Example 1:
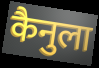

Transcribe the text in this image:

कैनुला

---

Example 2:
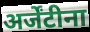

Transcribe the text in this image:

अर्जेंटीना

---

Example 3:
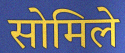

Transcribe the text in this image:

सोमिले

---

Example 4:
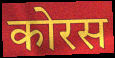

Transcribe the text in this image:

कोरस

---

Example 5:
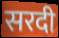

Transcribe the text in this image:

सरदी